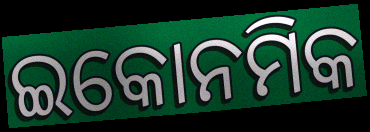
ଇକୋନମିକ